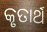
କୃତାର୍ଥ